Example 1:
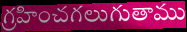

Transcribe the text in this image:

గ్రహించగలుగుతాము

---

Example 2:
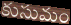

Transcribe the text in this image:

కుసుమం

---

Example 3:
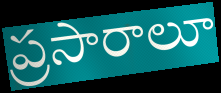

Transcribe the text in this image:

ప్రసారాలూ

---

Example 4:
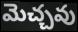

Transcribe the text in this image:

మెచ్చవు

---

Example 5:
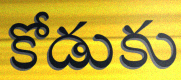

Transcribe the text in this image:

కోడుకు